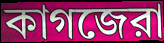
কাগজেরা